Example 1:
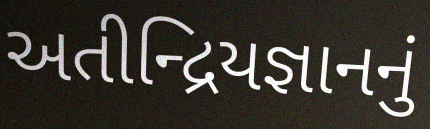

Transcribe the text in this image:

અતીન્દ્રિયજ્ઞાનનું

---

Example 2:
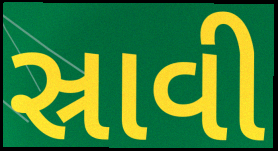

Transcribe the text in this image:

સ્રાવી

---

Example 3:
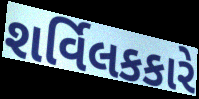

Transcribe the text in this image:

શર્વિલકકારે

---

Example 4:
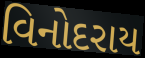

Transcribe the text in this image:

વિનોદરાય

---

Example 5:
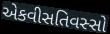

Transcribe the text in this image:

એકવીસતિવસ્સો